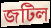
জটিল